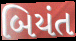
બિયંત